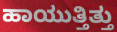
ಹಾಯುತ್ತಿತ್ತು